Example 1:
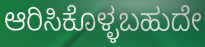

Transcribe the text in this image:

ಆರಿಸಿಕೊಳ್ಳಬಹುದೇ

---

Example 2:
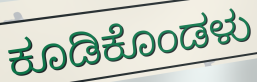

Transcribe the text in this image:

ಕೂಡಿಕೊಂಡಳು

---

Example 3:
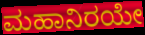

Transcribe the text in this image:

ಮಹಾನಿರಯೇ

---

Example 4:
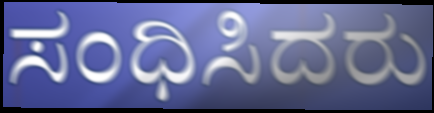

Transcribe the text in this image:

ಸಂಧಿಸಿದರು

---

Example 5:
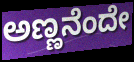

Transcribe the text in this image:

ಅಣ್ಣನೆಂದೇ